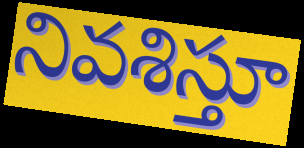
నివశిస్తూ